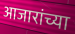
आजारांच्या